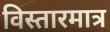
विस्तारमात्र